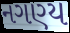
નગણ્ય